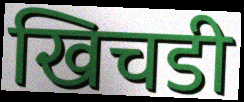
खिचडी